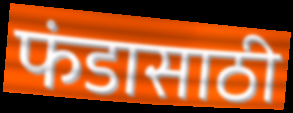
फंडासाठी